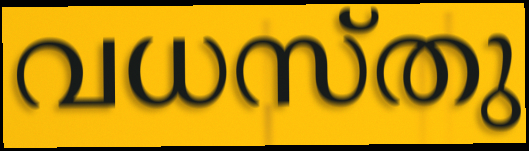
വധസ്തു